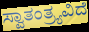
ಸ್ವಾತಂತ್ರ್ಯವಿದೆ